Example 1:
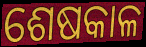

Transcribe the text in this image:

ଶେଷକାଳ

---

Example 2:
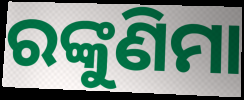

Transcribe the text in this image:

ରଙ୍କୁଣିମା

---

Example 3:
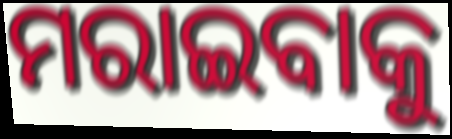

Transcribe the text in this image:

ମରାଇବାକୁ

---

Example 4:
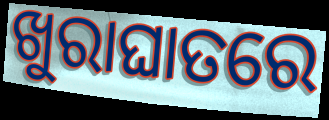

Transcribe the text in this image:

ଖୁରାଘାତରେ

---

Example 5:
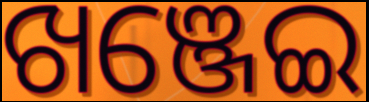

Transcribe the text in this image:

ଖଞ୍ଜେଇ